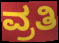
ವ್ರತಿ